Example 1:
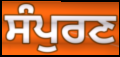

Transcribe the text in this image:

ਸੰਪੁਰਣ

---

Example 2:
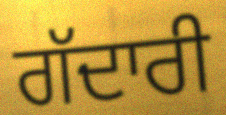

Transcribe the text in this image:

ਗੱਦਾਰੀ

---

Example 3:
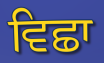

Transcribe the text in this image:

ਵਿਛਾ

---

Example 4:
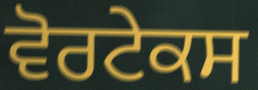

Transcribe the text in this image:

ਵੋਰਟੇਕਸ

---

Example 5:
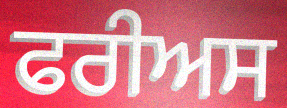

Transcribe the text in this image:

ਫਰੀਅਸ